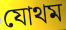
যোথম